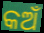
କଅଁ